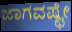
ಜಾಗವಷ್ಟೇ